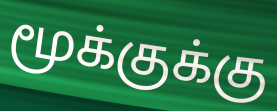
மூக்குக்கு